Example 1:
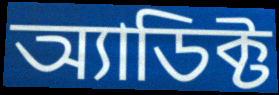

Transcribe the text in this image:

অ্যাডিক্ট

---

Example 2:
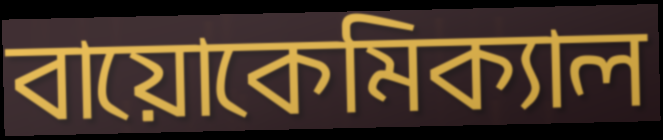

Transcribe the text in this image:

বায়োকেমিক্যাল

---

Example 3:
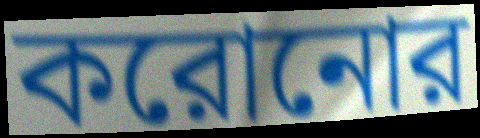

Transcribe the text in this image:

করোনোর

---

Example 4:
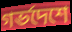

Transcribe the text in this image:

গর্ভদেশে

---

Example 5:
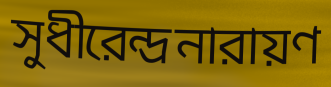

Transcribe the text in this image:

সুধীরেন্দ্রনারায়ণ